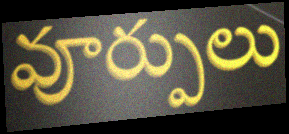
వూర్పులు